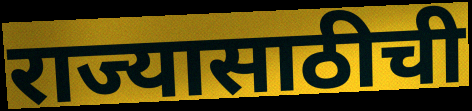
राज्यासाठीची